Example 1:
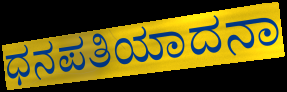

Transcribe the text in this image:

ಧನಪತಿಯಾದನಾ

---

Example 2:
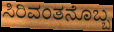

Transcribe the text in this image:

ಸಿರಿವಂತನೊಬ್ಬ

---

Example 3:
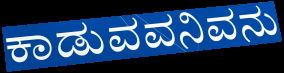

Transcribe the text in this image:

ಕಾಡುವವನಿವನು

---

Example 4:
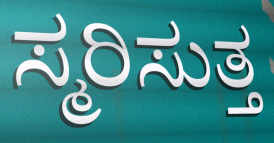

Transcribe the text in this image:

ಸ್ಮರಿಸುತ್ತ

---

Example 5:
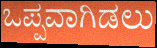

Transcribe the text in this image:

ಒಪ್ಪವಾಗಿಡಲು